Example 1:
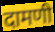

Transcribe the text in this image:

दामणी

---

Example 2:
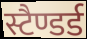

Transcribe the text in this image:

स्टैण्डर्ड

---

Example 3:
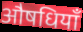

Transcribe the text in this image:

औषधियाँ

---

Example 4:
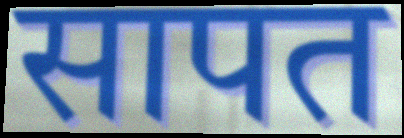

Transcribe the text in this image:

सापत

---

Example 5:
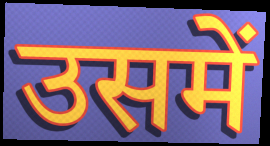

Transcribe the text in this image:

उसमें